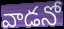
వాడనో